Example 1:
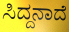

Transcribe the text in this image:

ಸಿದ್ದನಾದೆ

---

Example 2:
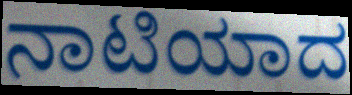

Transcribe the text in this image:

ನಾಟಿಯಾದ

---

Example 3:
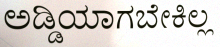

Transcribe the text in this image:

ಅಡ್ಡಿಯಾಗಬೇಕಿಲ್ಲ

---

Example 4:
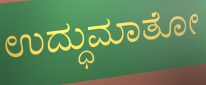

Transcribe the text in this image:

ಉದ್ಧುಮಾತೋ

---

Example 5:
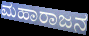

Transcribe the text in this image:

ಮಹಾರಾಜನ